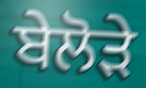
ਬੇਲੋੜੇ